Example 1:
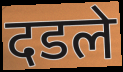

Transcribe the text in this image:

दडले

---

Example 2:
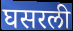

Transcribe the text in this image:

घसरली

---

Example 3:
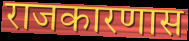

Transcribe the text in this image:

राजकारणास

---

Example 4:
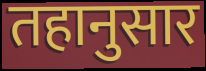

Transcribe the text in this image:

तहानुसार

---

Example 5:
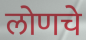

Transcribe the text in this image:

लोणचे